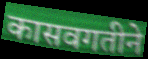
कासवगतीने